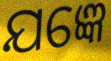
ଯଜ୍ଞେ